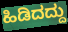
ಹಿಡಿದದ್ದು